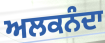
ਅਲਕਨੰਦਾ